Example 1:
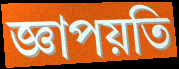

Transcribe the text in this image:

জ্ঞাপয়তি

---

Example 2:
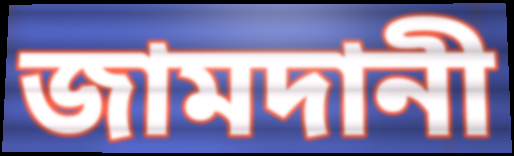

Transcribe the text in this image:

জামদানী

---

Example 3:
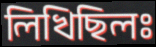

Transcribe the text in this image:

লিখিছিলঃ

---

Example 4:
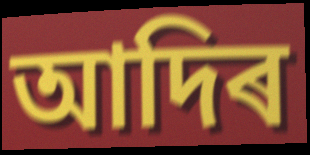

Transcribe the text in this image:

আদিৰ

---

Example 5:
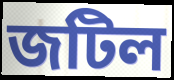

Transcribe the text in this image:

জটিল